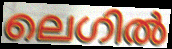
ലെഗിൽ